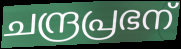
ചന്ദ്രപ്രഭന്